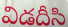
విడదీసి